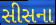
સીસના